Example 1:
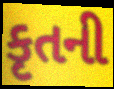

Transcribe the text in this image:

કૃતની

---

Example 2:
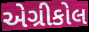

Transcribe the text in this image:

એગ્રીકોલ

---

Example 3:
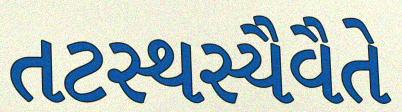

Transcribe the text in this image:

તટસ્થસ્યૈવૈતે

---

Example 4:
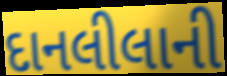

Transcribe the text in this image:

દાનલીલાની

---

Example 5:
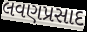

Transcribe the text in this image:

લવણપ્રસાદ